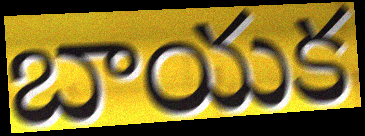
బాయక